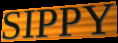
SIPPY